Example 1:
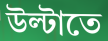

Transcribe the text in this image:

উল্টাতে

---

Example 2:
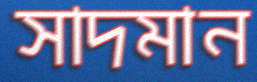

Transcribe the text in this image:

সাদমান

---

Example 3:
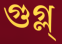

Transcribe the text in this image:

গুগ্ল্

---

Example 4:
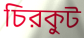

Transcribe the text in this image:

চিরকুট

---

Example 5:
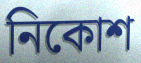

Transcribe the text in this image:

নিকোশ